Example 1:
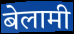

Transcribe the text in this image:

बेलामी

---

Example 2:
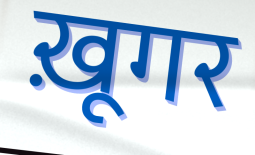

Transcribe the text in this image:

ख़ूगर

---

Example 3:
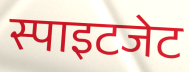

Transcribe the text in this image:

स्पाइटजेट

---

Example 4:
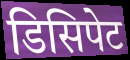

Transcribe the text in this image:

डिसिपेट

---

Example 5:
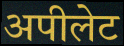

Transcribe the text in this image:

अपीलेट